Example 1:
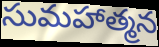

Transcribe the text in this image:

సుమహాత్మన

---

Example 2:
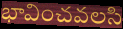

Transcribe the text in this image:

భావించవలసి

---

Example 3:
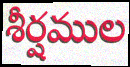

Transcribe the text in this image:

శీర్షముల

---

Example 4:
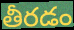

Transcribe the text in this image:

తీరడం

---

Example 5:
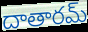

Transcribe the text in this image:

దాతారమ్